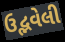
ઉદ્ભવેલી